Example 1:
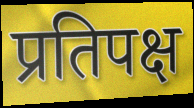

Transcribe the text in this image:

प्रतिपक्ष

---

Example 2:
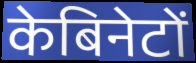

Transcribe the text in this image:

केबिनेटों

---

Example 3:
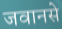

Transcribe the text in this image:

जवानसे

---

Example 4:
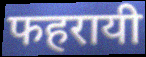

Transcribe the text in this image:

फहरायी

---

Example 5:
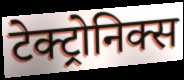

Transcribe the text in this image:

टेक्ट्रोनिक्स